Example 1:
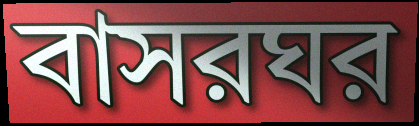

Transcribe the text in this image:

বাসরঘর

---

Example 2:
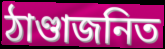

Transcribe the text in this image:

ঠাণ্ডাজনিত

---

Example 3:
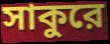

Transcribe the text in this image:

সাকুরে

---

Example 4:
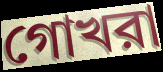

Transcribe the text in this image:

গোখরা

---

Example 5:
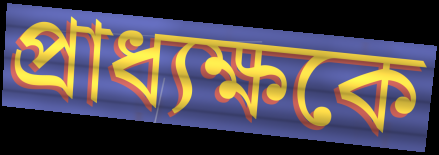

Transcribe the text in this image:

প্রাধ্যক্ষকে